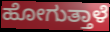
ಹೋಗುತ್ತಾಳೆ